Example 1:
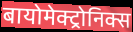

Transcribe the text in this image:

बायोमेक्ट्रोनिक्स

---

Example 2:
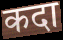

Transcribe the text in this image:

कदा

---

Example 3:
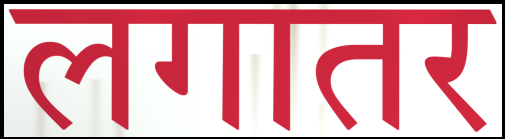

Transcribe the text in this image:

लगातर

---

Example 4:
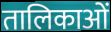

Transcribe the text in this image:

तालिकाओं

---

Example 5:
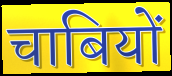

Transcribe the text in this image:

चाबियों